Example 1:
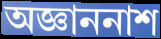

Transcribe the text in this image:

অজ্ঞাননাশ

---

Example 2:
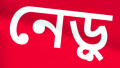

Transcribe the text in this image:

নেড়ু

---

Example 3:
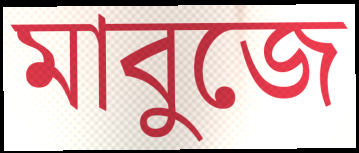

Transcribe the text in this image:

মাবুজে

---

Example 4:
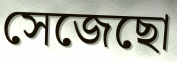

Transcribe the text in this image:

সেজেছো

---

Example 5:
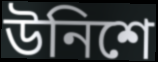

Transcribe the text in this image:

উনিশে